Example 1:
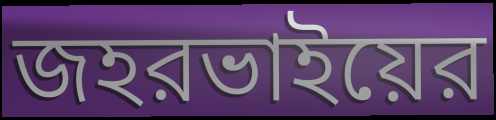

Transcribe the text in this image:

জহরভাইয়ের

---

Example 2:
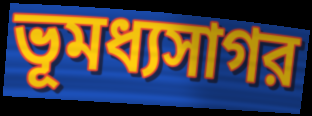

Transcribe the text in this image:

ভূমধ্যসাগর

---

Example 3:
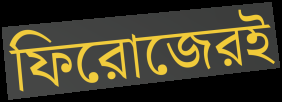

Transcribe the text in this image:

ফিরোজেরই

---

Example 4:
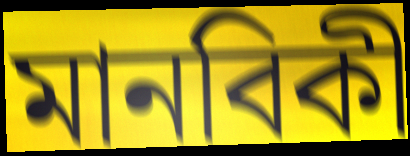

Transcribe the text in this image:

মানবিকী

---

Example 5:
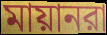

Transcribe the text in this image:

মায়ানরা